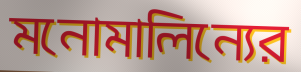
মনোমালিন্যের